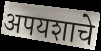
अपयशाचे